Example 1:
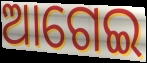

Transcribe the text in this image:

ଆଗେଇ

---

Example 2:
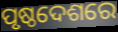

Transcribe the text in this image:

ପୃଷ୍ଠଦେଶରେ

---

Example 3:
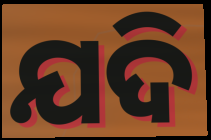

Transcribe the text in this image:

ଯଦି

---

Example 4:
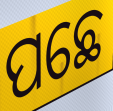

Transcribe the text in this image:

ପଛେ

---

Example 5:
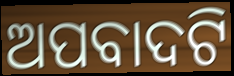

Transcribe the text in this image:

ଅପବାଦଟି